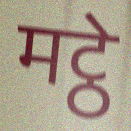
मट्ठे